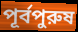
পূর্বপুরুষ